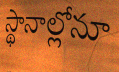
స్థానాల్లోనూ